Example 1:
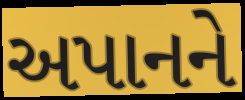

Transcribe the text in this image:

અપાનને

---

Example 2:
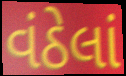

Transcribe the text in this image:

વંઠેલાં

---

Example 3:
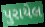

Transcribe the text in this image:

પુરાયેલ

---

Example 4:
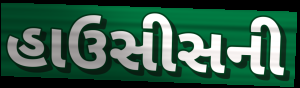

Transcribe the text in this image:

હાઉસીસની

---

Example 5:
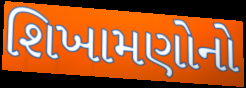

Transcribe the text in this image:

શિખામણોનો